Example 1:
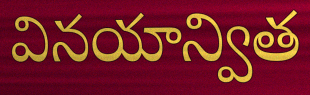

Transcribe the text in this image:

వినయాన్విత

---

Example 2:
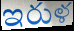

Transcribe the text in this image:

ఇరుళ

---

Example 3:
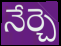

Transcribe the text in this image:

నేర్చె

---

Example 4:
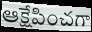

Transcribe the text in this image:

ఆక్షేపించగా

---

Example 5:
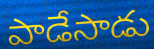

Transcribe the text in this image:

పాడేసాడు